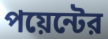
পয়েন্টের